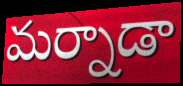
మర్నాడా